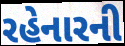
રહેનારની